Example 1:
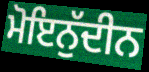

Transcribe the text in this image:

ਮੋਇਨੁੱਦੀਨ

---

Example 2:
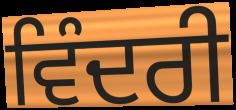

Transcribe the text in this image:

ਵਿੰਦਰੀ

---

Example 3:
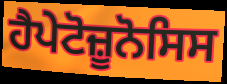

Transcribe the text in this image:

ਹੈਪੇਟੋਜ਼ੂਨੋਸਿਸ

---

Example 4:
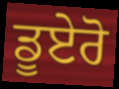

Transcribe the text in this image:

ਡੂਏਰੋ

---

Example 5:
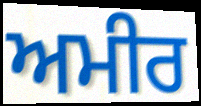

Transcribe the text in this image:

ਅਮੀਰ